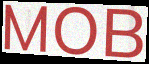
MOB